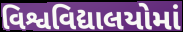
વિશ્વવિદ્યાલયોમાં